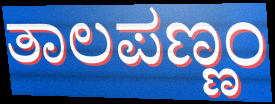
ತಾಲಪಣ್ಣಂ